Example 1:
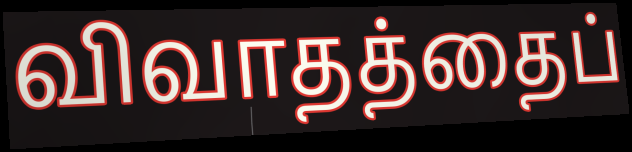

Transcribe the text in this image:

விவாதத்தைப்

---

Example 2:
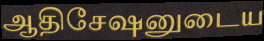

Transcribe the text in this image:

ஆதிசேஷனுடைய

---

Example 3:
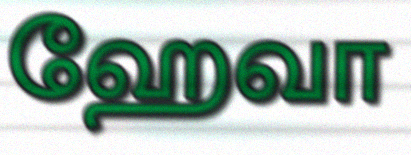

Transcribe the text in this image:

ஹேவா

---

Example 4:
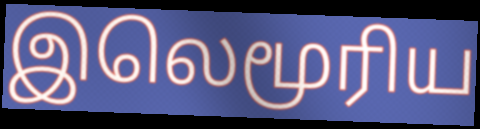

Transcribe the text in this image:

இலெமூரிய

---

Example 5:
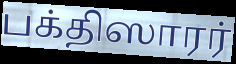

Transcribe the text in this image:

பக்திஸாரர்